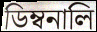
ডিম্বনালি